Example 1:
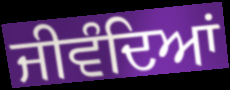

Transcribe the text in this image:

ਜੀਵੰਦਿਆਂ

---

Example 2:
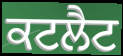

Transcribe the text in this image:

ਕਟਲੈਟ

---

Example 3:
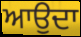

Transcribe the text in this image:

ਆਉਦਾ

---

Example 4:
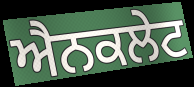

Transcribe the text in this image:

ਐਨਕਲੇਟ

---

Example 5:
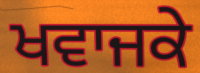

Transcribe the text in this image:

ਖਵਾਜਕੇ